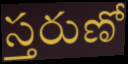
స్తరుణో